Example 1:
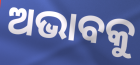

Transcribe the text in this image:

ଅଭାବକୁ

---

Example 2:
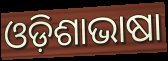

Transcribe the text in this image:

ଓଡ଼ିଶାଭାଷା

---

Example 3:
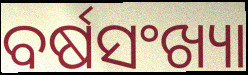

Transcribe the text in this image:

ବର୍ଷସଂଖ୍ୟା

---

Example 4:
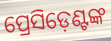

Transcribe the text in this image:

ପ୍ରେସିଡ଼େଣ୍ଟଙ୍କ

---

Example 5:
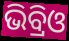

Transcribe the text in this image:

ଭିବ୍ରିଓ